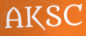
AKSC